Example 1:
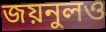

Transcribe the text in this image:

জয়নুলও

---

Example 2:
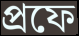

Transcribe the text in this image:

প্রফে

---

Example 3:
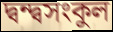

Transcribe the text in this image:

দ্বন্দ্বসংকুল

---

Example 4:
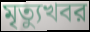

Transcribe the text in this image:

মৃত্যুখবর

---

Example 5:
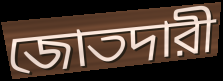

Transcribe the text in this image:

জোতদারী